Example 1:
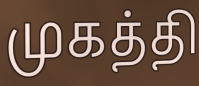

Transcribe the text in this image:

முகத்தி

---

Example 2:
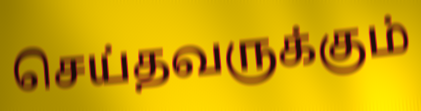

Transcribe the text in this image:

செய்தவருக்கும்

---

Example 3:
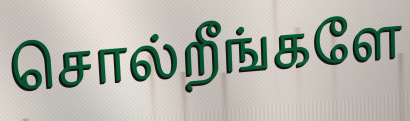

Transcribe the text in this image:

சொல்றீங்களே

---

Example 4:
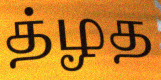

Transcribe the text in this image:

த்ழத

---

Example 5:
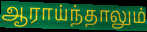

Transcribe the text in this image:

ஆராய்ந்தாலும்